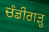
ਚੰਡੀਗਡ਼੍ਹ